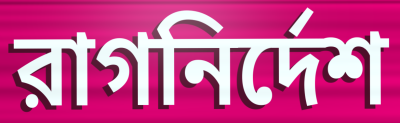
রাগনির্দেশ